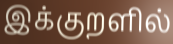
இக்குறளில்